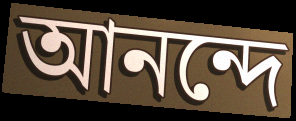
আনন্দে